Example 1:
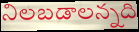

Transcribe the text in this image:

నిలబడాలన్నది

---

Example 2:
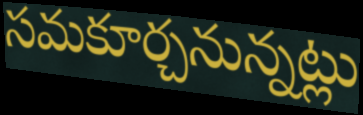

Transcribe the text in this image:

సమకూర్చనున్నట్లు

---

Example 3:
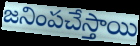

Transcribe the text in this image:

జనింపచేస్తాయి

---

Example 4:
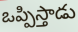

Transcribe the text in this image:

ఒప్పిస్తాడు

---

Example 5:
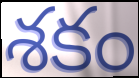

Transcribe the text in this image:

శకం